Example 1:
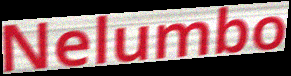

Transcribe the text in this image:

Nelumbo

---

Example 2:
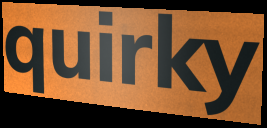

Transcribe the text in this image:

quirky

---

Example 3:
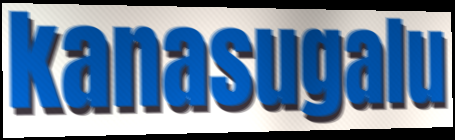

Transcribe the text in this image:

kanasugalu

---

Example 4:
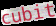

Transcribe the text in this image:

cubit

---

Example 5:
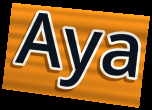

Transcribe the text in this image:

Aya